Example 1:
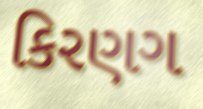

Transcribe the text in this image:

કિરણગ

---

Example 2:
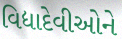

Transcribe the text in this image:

વિદ્યાદેવીઓને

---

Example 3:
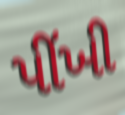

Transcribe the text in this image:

પીંખી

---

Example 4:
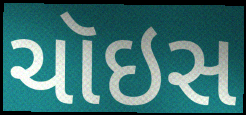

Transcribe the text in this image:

ચૉઇસ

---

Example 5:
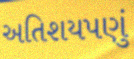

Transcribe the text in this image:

અતિશયપણું